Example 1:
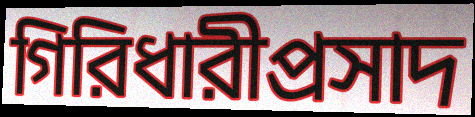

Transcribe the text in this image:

গিরিধারীপ্রসাদ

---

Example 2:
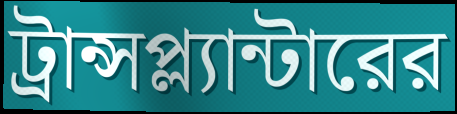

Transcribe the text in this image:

ট্রান্সপ্ল্যান্টারের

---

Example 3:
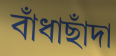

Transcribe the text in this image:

বাঁধাছাঁদা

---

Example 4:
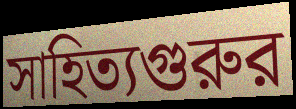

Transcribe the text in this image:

সাহিত্যগুরুর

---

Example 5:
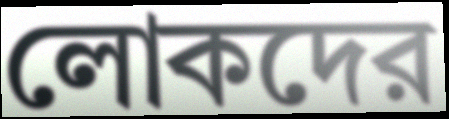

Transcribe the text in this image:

লোকদের